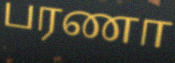
பரணா